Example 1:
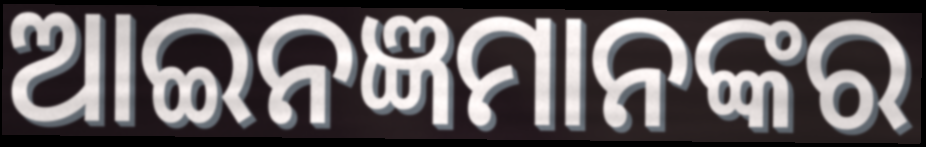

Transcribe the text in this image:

ଆଇନଜ୍ଞମାନଙ୍କର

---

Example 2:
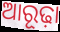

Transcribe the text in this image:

ଆରୂଢ଼ା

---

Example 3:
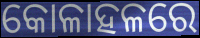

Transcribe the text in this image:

କୋଳାହଳରେ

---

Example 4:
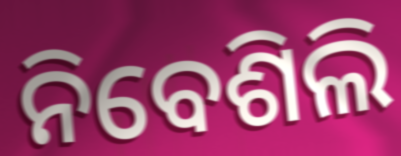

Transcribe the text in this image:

ନିବେଶିଲି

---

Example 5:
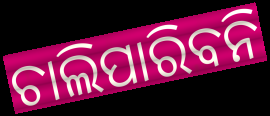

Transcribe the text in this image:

ଚାଲିପାରିବନି